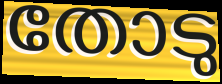
തോടു